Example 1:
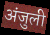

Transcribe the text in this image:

अंजुली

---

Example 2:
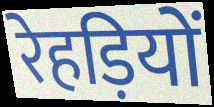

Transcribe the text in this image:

रेहड़ियों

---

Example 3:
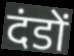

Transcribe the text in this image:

दंडों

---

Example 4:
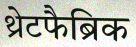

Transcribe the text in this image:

थ्रेटफैब्रिक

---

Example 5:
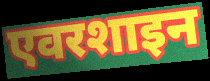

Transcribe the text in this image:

एवरशाइन